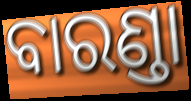
ବାରଣ୍ଡା